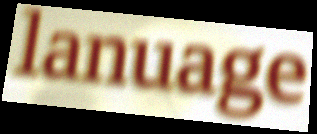
lanuage